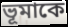
ভূমাকে